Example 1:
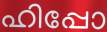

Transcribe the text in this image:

ഹിപ്പോ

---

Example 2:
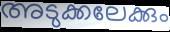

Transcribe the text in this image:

അടുക്കലേക്കും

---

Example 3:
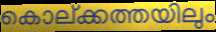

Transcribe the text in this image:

കൊല്ക്കത്തയിലും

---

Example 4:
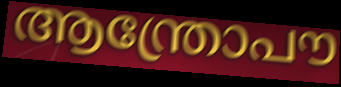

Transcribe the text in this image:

ആന്ത്രോപൗ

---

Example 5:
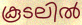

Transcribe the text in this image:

കൂടലിൽ